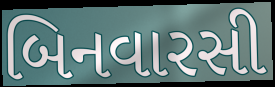
બિનવારસી